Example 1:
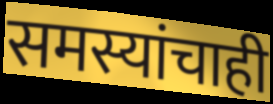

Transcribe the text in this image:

समस्यांचाही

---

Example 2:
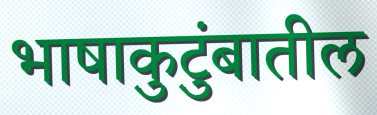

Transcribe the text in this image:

भाषाकुटुंबातील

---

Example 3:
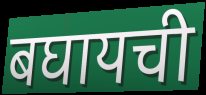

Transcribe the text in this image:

बघायची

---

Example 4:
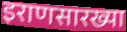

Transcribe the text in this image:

इराणसारख्या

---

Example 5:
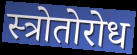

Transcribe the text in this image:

स्त्रोतोरोध